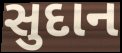
સુદાન